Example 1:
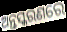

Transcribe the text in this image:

ଅନ୍ତସ୍କରଣରେ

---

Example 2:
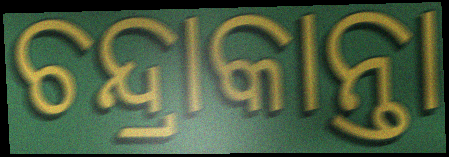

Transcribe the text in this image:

ଚନ୍ଦ୍ରାକାନ୍ତା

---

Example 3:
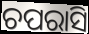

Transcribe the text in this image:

ଚପରାସି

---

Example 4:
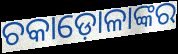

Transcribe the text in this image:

ଚକାଡ଼ୋଳାଙ୍କର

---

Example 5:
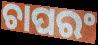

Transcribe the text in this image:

ଚାପରଂ